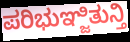
ಪರಿಭುಞ್ಜಿತುನ್ತಿ